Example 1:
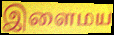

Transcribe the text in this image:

இளைமய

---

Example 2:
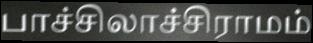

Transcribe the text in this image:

பாச்சிலாச்சிராமம்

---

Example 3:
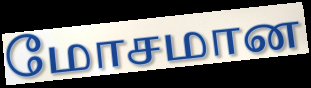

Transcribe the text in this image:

மோசமான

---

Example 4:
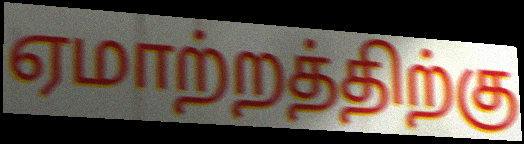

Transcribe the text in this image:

ஏமாற்றத்திற்கு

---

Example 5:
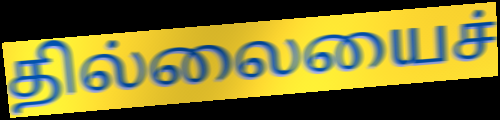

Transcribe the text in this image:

தில்லையைச்